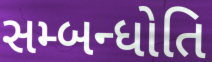
સમ્બન્ધોતિ